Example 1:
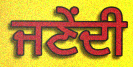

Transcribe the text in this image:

ਜਣੇਂਦੀ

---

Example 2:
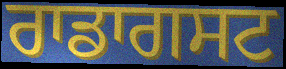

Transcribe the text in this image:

ਰਾਡਾਗਸਟ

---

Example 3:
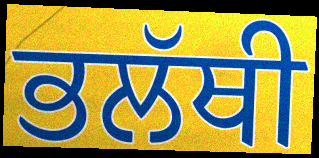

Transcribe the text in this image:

ਭਲੱਥੀ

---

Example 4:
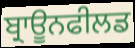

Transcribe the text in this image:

ਬ੍ਰਾਊਨਫੀਲਡ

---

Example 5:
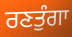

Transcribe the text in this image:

ਰਣਤੁੰਗਾ